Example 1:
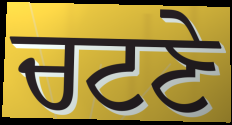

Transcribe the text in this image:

ਚਟਣੇ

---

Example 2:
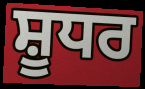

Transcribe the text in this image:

ਸ਼ੂਧਰ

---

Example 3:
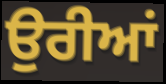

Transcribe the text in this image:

ਉਰੀਆਂ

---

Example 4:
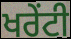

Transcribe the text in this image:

ਖਰੇਂਟੀ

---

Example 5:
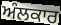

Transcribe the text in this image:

ਅੰਲਕਾਰ